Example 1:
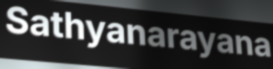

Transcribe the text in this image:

Sathyanarayana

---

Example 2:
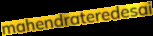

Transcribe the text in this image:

mahendrateredesai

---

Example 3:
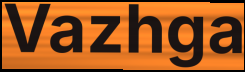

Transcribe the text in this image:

Vazhga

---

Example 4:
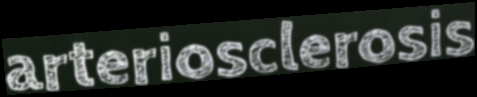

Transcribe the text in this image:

arteriosclerosis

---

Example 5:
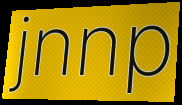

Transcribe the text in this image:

jnnp